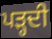
ਪਡ਼੍ਹਦੀ